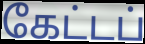
கேட்டப்